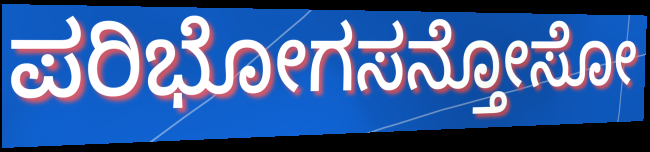
ಪರಿಭೋಗಸನ್ತೋಸೋ